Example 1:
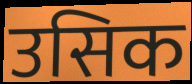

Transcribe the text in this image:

उसिक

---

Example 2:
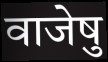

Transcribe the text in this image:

वाजेषु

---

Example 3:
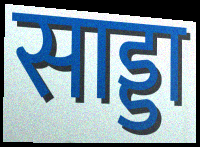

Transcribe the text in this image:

साड्डा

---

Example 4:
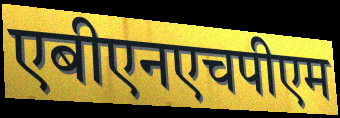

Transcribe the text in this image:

एबीएनएचपीएम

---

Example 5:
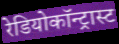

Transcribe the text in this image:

रेडियोकॉन्ट्रास्ट